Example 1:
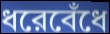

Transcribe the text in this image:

ধরেবেঁধে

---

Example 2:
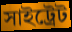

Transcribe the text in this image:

সাইট্রেট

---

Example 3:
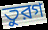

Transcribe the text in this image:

তুরগ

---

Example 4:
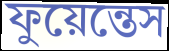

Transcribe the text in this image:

ফুয়েন্তেস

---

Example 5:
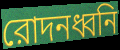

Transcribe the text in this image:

রোদনধ্বনি